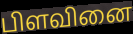
பிளவினை